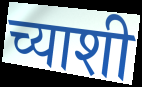
च्याशी